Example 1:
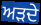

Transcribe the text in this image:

ਅੜਦੇ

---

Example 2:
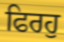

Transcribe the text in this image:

ਫਿਰਹੁ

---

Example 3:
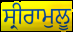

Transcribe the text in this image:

ਸ੍ਰੀਰਾਮੁਲੂ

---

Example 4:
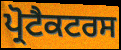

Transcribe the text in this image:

ਪ੍ਰੋਟੈਕਟਰਸ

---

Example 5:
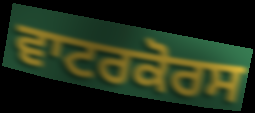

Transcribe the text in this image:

ਵਾਟਰਕੋਰਸ